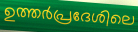
ഉത്തർപ്രദേശിലെ